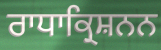
ਰਾਧਾਕ੍ਰਿਸ਼ਨਨ